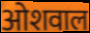
ओशवाल